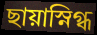
ছায়াস্নিগ্ধ